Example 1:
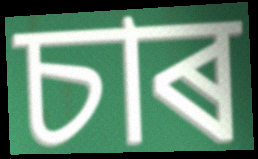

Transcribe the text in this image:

চাৰ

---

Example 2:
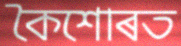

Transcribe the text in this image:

কৈশোৰত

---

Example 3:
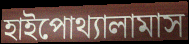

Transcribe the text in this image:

হাইপোথ্যালামাস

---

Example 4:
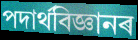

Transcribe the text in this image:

পদাৰ্থবিজ্ঞানৰ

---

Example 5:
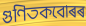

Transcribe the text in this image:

গুণিতকবোৰৰ